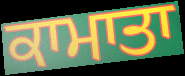
ਕਾਮਾਤਾ